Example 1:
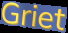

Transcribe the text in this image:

Griet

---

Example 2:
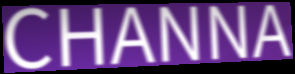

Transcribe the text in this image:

CHANNA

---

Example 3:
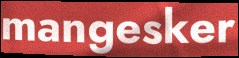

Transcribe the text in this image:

mangesker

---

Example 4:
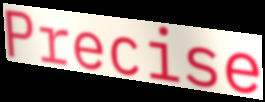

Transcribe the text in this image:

Precise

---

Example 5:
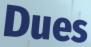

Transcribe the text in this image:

Dues